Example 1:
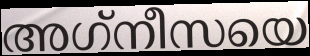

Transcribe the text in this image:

അഗ്‌നീസയെ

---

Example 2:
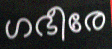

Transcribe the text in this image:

ഗഭീരേ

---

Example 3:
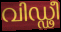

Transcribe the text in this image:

വിഡ്ഢീ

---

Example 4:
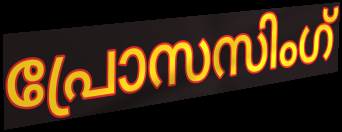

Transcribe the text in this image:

പ്രോസസിംഗ്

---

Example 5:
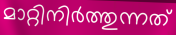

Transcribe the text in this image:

മാറ്റിനിർത്തുന്നത്